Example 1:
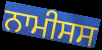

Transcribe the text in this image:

ਨਾਮੀਸਸ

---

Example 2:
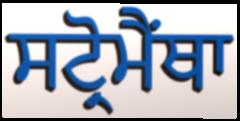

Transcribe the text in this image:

ਸਟ੍ਰੋਮੈਂਥਾ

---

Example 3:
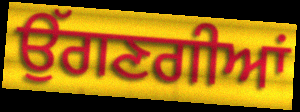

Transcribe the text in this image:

ਉੱਗਣਗੀਆਂ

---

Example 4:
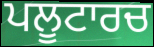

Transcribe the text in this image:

ਪਲੂਟਾਰਚ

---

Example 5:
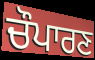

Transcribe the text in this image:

ਚੌਪਾਰਣ